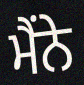
ਮੈਂਨੇ